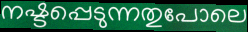
നഷ്ടപ്പെടുന്നതുപോലെ